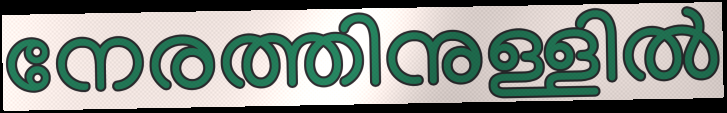
നേരത്തിനുള്ളിൽ